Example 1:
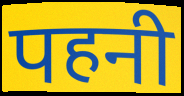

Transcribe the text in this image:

पहनी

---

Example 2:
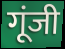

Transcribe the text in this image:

गूंजी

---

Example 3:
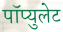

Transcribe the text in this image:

पॉप्युलेट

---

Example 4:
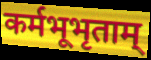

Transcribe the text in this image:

कर्मभूभृताम्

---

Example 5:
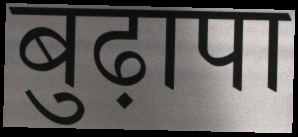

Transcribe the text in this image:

बुढ़ापा